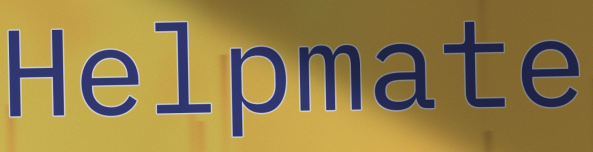
Helpmate